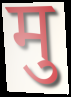
मु